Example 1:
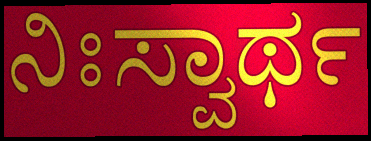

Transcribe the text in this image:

ನಿಃಸ್ವಾರ್ಥ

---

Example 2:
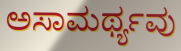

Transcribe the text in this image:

ಅಸಾಮರ್ಥ್ಯವು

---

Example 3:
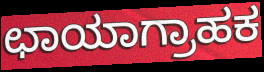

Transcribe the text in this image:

ಛಾಯಾಗ್ರಾಹಕ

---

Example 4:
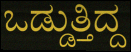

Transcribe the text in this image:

ಒಡ್ಡುತ್ತಿದ್ದ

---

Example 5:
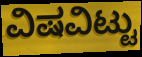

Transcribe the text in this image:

ವಿಷವಿಟ್ಟು